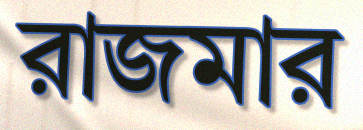
রাজমার